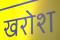
खरोश